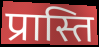
प्रास्ति